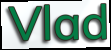
Vlad